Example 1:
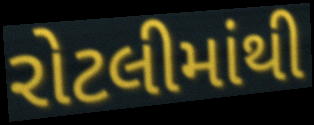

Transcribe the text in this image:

રોટલીમાંથી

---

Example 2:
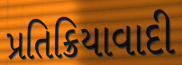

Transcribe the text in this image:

પ્રતિક્રિયાવાદી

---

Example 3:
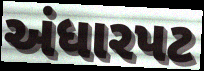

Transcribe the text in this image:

અંધારપટ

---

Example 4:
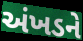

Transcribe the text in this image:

અંખડને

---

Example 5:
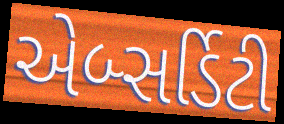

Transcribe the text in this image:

એબ્સર્ડિટી